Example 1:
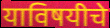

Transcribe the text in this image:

याविषयीचे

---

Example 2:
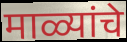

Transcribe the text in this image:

माळ्यांचे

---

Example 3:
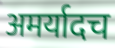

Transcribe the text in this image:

अमर्यादच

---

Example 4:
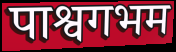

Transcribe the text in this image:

पाश्वगभम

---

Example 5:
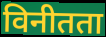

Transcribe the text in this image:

विनीतता